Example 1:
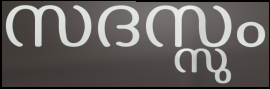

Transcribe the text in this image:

സദസ്സും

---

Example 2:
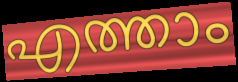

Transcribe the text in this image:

എത്താം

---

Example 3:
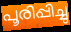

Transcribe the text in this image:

പൂരിപ്പിച്ചു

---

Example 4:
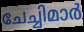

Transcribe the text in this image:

ചേച്ചിമാർ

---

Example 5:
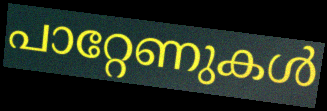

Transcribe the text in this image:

പാറ്റേണുകൾ